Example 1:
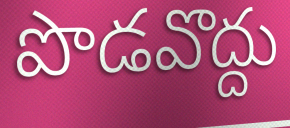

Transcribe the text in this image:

పొడవొద్దు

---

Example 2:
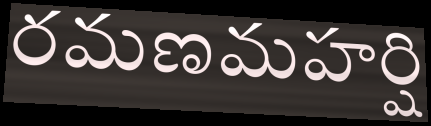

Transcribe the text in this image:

రమణమహర్షి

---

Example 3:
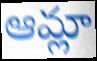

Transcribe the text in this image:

ఆమ్లా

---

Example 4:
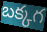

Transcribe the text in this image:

బక్కగ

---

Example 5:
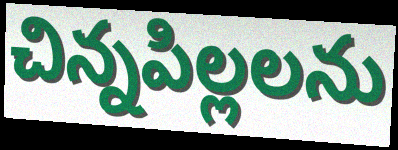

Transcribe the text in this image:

చిన్నపిల్లలను